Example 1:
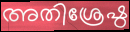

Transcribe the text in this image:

അതിശ്രേഷ്ഠ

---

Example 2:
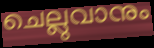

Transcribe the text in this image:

ചെല്ലുവാനും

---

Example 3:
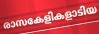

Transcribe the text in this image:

രാസകേളികളാടിയ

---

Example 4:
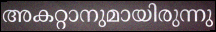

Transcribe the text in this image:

അകറ്റാനുമായിരുന്നു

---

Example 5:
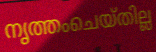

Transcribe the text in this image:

നൃത്തംചെയ്തില്ല